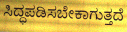
ಸಿದ್ಧಪಡಿಸಬೇಕಾಗುತ್ತದೆ